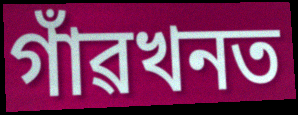
গাঁৱখনত